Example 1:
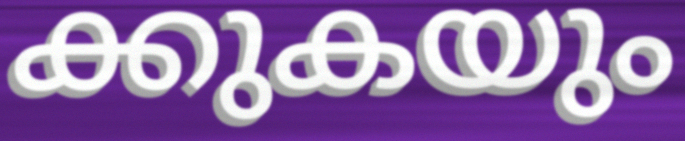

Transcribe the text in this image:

ക്കുകയും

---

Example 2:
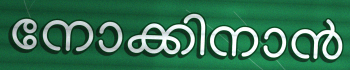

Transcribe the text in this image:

നോക്കിനാൻ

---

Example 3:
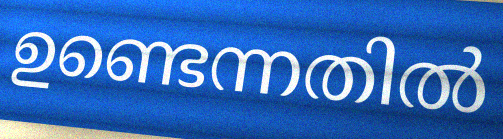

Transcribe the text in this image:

ഉണ്ടെന്നതിൽ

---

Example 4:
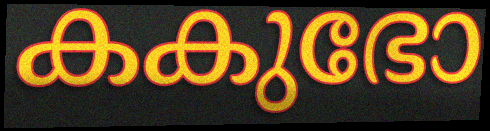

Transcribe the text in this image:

കകുഭോ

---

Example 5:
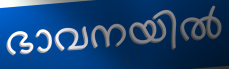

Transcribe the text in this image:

ഭാവനയിൽ